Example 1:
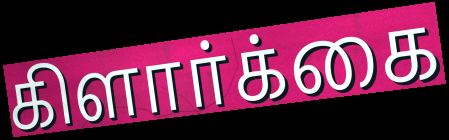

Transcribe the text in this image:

கிளார்க்கை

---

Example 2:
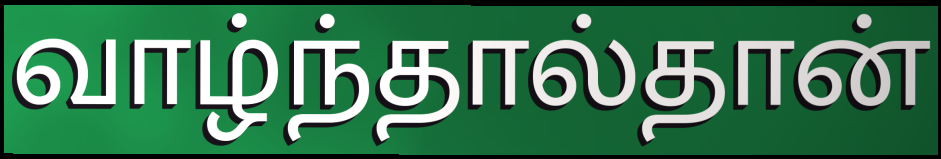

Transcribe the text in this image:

வாழ்ந்தால்தான்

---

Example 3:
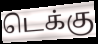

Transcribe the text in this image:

டெக்கு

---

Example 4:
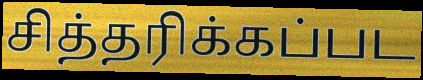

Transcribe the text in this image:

சித்தரிக்கப்பட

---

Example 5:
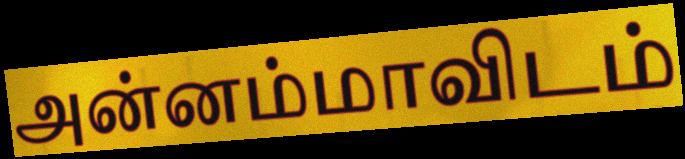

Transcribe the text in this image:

அன்னம்மாவிடம்